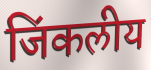
जिंकलीय